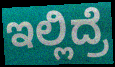
ಇಲ್ಲಿದ್ರೆ